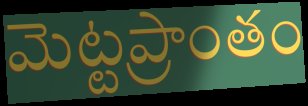
మెట్టప్రాంతం